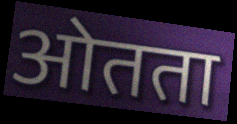
ओतता